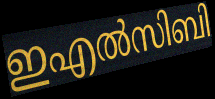
ഇഎൽസിബി